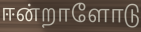
ஈன்றாளோடு